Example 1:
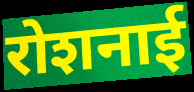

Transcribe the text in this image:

रोशनाई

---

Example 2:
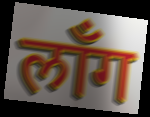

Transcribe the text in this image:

लाँग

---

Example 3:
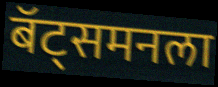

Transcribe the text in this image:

बॅट्समनला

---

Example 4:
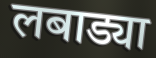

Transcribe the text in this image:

लबाड्या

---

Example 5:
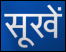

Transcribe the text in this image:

सूखें